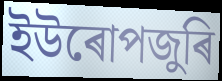
ইউৰোপজুৰি